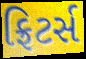
ફ્રિટર્સ